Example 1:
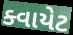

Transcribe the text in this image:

ક્વાયેટ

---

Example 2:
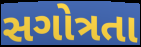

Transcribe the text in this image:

સગોત્રતા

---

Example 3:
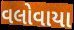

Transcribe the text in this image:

વલોવાયા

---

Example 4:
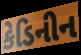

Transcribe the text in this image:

કેડિનીન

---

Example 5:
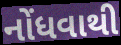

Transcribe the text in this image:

નોંધવાથી